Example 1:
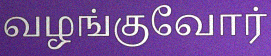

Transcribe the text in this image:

வழங்குவோர்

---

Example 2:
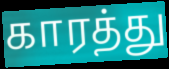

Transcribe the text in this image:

காரத்து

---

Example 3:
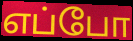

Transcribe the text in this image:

எப்போ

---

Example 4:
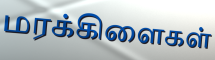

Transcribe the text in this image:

மரக்கிளைகள்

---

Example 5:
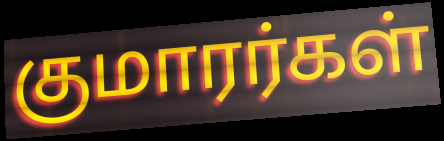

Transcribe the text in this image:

குமாரர்கள்